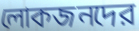
লোকজনদের